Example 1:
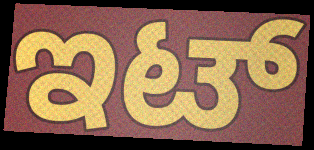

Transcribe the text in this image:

ಇಟ್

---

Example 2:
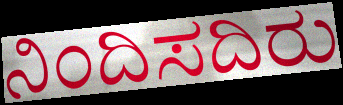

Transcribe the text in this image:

ನಿಂದಿಸದಿರು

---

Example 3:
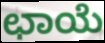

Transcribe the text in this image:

ಛಾಯೆ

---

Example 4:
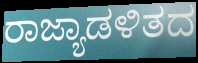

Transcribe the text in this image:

ರಾಜ್ಯಾಡಳಿತದ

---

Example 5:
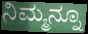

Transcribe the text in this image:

ನಿಮ್ಮನ್ನೂ